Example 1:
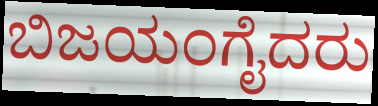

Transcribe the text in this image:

ಬಿಜಯಂಗೈದರು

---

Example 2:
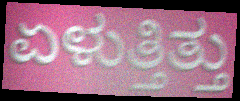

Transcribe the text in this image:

ಏಳುತ್ತಿತ್ತು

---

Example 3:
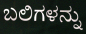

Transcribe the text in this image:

ಬಲಿಗಳನ್ನು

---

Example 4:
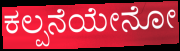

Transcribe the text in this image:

ಕಲ್ಪನೆಯೇನೋ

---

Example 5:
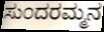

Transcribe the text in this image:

ಸುಂದರಮ್ಮನ